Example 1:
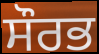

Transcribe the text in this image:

ਸੌਰਭ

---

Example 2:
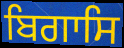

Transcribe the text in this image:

ਬਿਗਾਸਿ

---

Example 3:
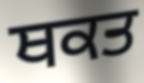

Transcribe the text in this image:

ਥਕਤ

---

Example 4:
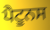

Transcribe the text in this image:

ਪੈਟੂਨਸ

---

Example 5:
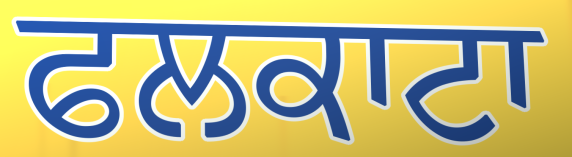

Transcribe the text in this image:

ਫਲਕਾਟਾ